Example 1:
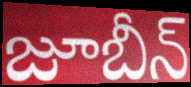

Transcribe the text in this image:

జూబీన్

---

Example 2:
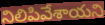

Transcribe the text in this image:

నిలిపివేశాయని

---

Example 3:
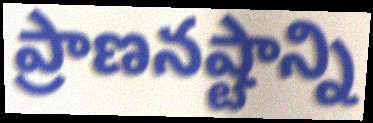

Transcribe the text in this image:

ప్రాణనష్టాన్ని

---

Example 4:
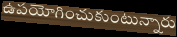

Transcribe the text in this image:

ఉపయోగించుకుంటున్నారు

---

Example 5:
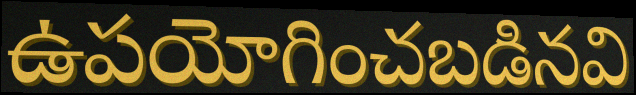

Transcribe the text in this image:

ఉపయోగించబడినవి